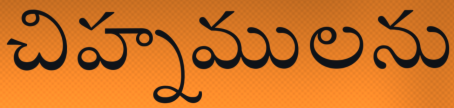
చిహ్నములను